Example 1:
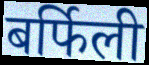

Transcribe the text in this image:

बर्फिली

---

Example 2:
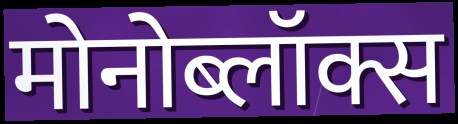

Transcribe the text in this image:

मोनोब्लॉक्स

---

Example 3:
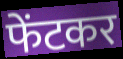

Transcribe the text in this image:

फेंटकर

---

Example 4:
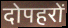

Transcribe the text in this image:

दोपहरों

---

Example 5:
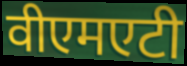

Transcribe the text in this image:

वीएमएटी